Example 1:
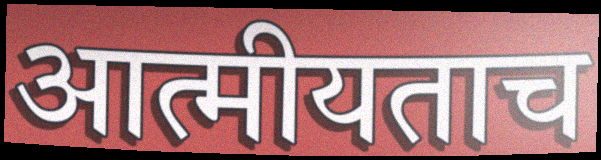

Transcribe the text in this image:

आत्मीयताच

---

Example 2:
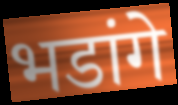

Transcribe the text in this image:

भडांगे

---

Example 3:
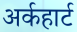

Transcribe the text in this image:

अर्कहार्ट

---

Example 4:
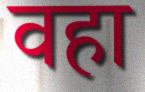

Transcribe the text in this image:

वहा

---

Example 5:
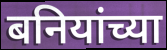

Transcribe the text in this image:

बनियांच्या